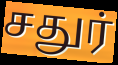
சதுர்